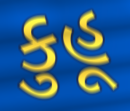
કુહૂ